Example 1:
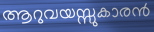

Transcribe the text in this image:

ആറുവയസ്സുകാരൻ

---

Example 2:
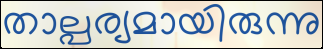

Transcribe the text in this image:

താല്പര്യമായിരുന്നു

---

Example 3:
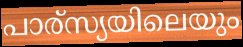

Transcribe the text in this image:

പാര്സ്യയിലെയും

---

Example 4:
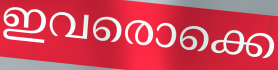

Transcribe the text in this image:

ഇവരൊക്കെ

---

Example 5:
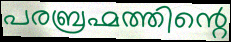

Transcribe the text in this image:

പരബ്രഹ്മത്തിന്റെ